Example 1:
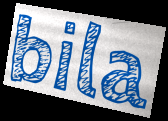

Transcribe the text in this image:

bila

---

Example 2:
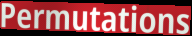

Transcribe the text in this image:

Permutations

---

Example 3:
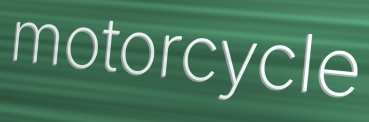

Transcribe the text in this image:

motorcycle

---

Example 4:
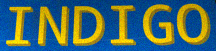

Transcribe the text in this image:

INDIGO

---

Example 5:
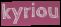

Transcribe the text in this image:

kyriou